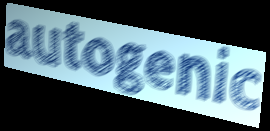
autogenic